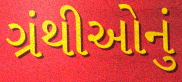
ગ્રંથીઓનું